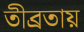
তীব্রতায়